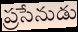
ప్రసేనుడు